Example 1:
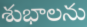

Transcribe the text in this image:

శుభాలను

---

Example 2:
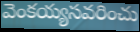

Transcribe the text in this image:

వెంకయ్యసవరించు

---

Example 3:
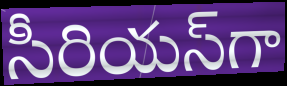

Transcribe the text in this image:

సీరియస్‌గా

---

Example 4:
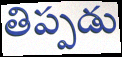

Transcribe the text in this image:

తిప్పడు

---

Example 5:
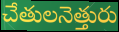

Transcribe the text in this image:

చేతులనెత్తురు